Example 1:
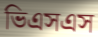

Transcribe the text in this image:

ভিএসএস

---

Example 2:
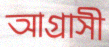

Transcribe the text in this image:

আগ্রাসী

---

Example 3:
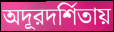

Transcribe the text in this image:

অদূরদর্শিতায়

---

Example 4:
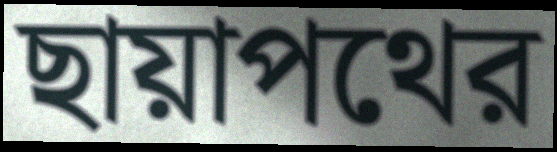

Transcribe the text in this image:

ছায়াপথের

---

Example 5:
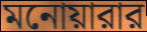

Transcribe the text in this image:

মনোয়ারার